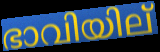
ഭാവിയില്